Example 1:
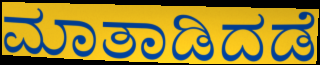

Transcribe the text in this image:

ಮಾತಾಡಿದಡೆ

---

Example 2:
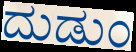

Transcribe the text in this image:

ದುಡುಂ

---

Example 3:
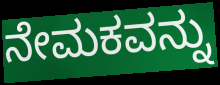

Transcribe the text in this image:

ನೇಮಕವನ್ನು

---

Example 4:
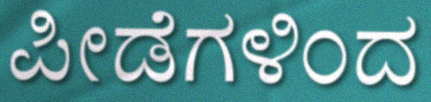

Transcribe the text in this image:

ಪೀಡೆಗಳಿಂದ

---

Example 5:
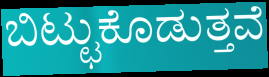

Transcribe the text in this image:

ಬಿಟ್ಟುಕೊಡುತ್ತವೆ